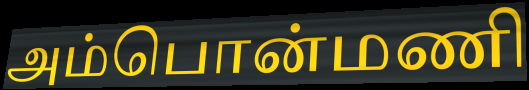
அம்பொன்மணி